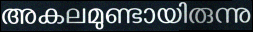
അകലമുണ്ടായിരുന്നു